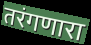
तरंगणारा